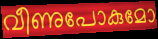
വീണുപോകുമോ